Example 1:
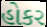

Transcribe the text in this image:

હોકર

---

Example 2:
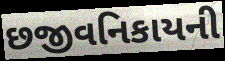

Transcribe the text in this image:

છજીવનિકાયની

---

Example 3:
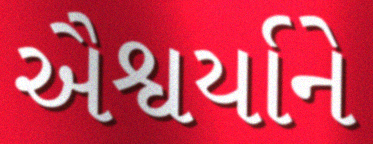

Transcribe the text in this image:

ઐશ્વર્યાને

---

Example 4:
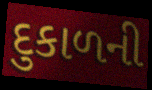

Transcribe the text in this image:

દુકાળની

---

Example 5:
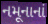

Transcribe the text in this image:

નમૂનાનાં